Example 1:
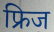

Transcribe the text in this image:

फ्रिज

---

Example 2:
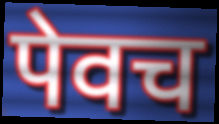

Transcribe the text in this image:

पेवच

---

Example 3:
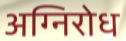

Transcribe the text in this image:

अग्निरोध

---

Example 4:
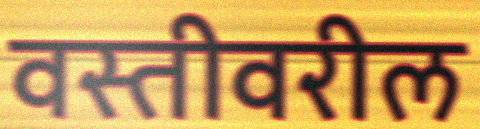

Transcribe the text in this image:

वस्तीवरील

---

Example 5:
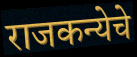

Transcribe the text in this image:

राजकन्येचे